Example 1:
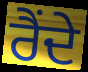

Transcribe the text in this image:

ਰੈਂਦੇ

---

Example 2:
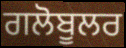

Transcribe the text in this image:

ਗਲੋਬੂਲਰ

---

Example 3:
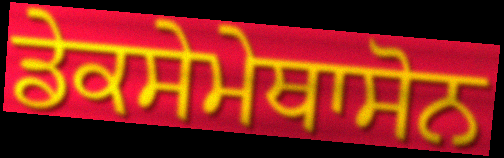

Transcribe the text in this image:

ਡੇਕਸੇਮੇਥਾਸੋਨ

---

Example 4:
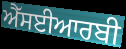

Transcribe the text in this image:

ਐੱਸਈਆਰਬੀ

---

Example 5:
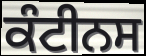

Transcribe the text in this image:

ਕੰਟੀਨਸ